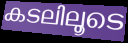
കടലിലൂടെ